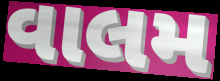
વાલમ